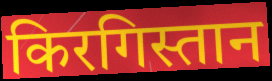
किरगिस्तान